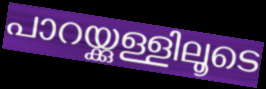
പാറയ്ക്കുള്ളിലൂടെ